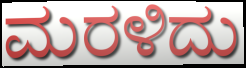
ಮರಳಿದು